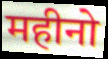
महीनो